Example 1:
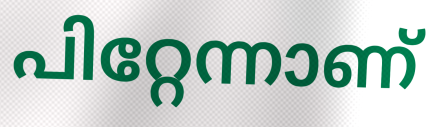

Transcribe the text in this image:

പിറ്റേന്നാണ്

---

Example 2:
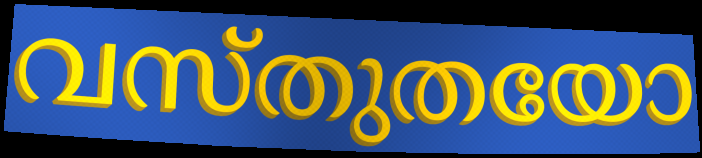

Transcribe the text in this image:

വസ്തുതയോ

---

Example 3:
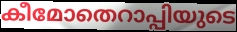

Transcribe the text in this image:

കീമോതെറാപ്പിയുടെ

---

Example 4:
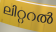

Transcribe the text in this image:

ലിറ്ററൽ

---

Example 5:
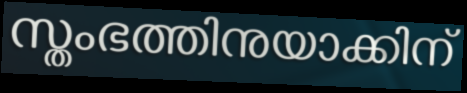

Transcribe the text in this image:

സ്തംഭത്തിനുയാക്കിന്